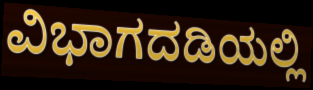
ವಿಭಾಗದಡಿಯಲ್ಲಿ